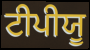
ਟੀਪੀਯੂ